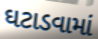
ઘટાડવામાં